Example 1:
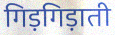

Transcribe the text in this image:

गिड़गिड़ाती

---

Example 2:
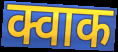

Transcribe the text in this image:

क्वाक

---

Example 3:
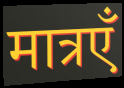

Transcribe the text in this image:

मात्रएँ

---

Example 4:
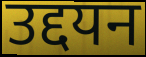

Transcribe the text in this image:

उद्दयन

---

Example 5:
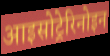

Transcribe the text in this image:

आइसोट्रेरिनोइन